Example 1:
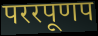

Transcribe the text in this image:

पररपूणप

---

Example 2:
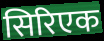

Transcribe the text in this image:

सिरिएक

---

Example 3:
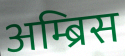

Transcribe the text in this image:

अम्ब्रिस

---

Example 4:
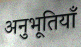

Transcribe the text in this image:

अनुभूतियाँ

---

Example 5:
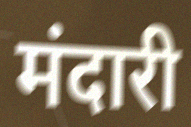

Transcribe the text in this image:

मंदारी